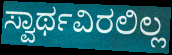
ಸ್ವಾರ್ಥವಿರಲಿಲ್ಲ